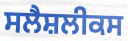
ਸਲੈਸ਼ਲੀਕਸ